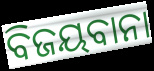
ବିଜୟବାନା